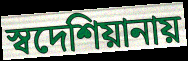
স্বদেশিয়ানায়